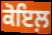
ਕੋਇਲ਼